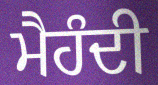
ਮੈਹੰਦੀ